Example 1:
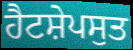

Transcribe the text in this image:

ਹੈਟਸ਼ੇਪਸੁਤ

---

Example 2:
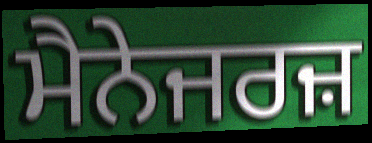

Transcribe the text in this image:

ਮੈਨੇਜਰਜ਼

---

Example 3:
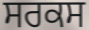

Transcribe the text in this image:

ਸਰਕਸ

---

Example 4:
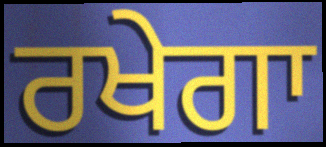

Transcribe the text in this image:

ਰਖੇਗਾ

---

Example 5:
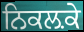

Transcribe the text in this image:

ਨਿਕਲ਼ਕੇ